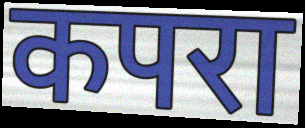
कपरा